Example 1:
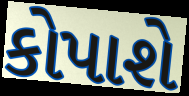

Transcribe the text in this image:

કોપાશે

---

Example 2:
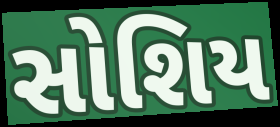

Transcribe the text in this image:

સોશિય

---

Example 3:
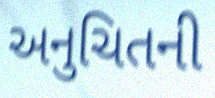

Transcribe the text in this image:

અનુચિતની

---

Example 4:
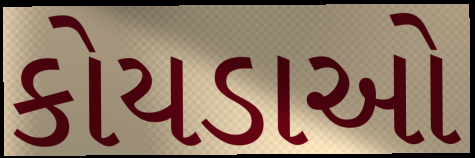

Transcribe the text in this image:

કોયડાઓ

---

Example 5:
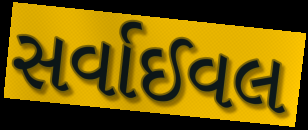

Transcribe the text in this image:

સર્વાઈવલ